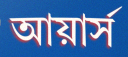
আয়ার্স